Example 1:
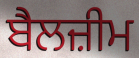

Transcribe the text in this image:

ਬੈਲਜ਼ੀਮ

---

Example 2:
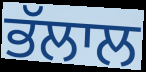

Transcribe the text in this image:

ਭੱਲਾਲ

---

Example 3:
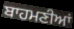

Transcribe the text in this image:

ਬਾਹਮਣੀਆਂ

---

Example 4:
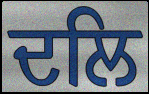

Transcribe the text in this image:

ਦਲਿ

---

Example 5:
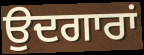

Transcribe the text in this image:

ਉਦਗਾਰਾਂ